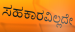
ಸಹಕಾರವಿಲ್ಲದೇ